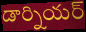
డార్నియర్